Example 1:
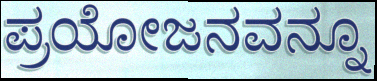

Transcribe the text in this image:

ಪ್ರಯೋಜನವನ್ನೂ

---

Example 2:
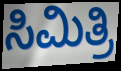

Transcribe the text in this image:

ಸಿಮಿತ್ರಿ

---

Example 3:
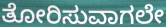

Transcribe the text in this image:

ತೋರಿಸುವಾಗಲೇ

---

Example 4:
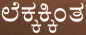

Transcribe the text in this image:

ಲೆಕ್ಕಕ್ಕಿಂತ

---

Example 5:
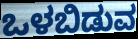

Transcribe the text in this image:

ಒಳಬಿಡುವ